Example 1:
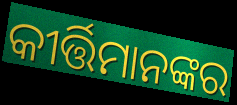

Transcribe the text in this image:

କୀର୍ତ୍ତିମାନଙ୍କର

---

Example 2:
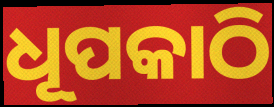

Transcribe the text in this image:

ଧୂପକାଠି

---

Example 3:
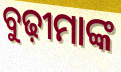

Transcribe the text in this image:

ବୁଢ଼ୀମାଙ୍କ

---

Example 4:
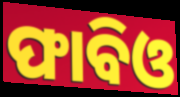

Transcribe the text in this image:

ଫାବିଓ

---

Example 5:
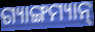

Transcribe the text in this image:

ଗ୍ୟାଙ୍ଗମ୍ୟାନ୍